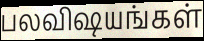
பலவிஷயங்கள்